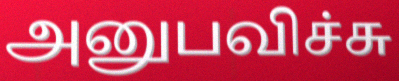
அனுபவிச்சு